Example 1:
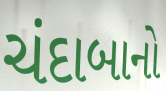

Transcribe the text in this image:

ચંદાબાનો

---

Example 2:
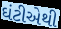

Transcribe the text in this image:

ઘંટીએથી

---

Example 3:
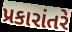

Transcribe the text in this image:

પ્રકારાંતરે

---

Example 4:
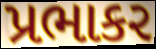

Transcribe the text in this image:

પ્રભાકર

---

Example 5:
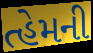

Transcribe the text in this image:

ત્હેમની